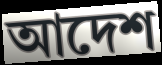
আদেশ